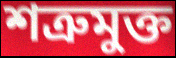
শত্রুমুক্ত